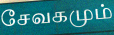
சேவகமும்